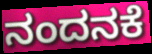
ನಂದನಕೆ